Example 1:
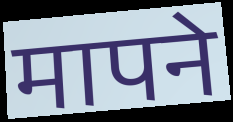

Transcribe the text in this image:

मापने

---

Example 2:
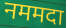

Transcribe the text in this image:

नममदा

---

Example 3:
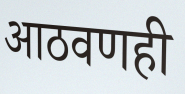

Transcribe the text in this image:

आठवणही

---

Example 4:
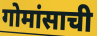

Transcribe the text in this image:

गोमांसाची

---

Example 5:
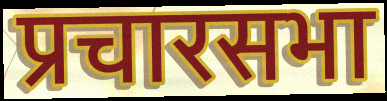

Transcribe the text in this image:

प्रचारसभा